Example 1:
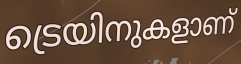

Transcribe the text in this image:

ട്രെയിനുകളാണ്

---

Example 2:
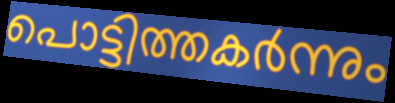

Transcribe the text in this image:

പൊട്ടിത്തകർന്നും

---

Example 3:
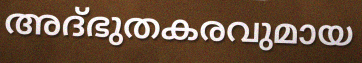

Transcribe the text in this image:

അദ്ഭുതകരവുമായ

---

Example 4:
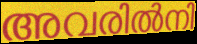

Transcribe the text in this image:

അവരിൽനി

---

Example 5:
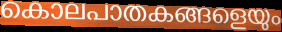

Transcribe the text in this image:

കൊലപാതകങ്ങളെയും